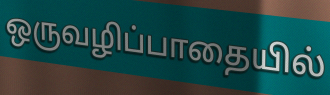
ஒருவழிப்பாதையில்